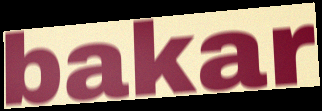
bakar